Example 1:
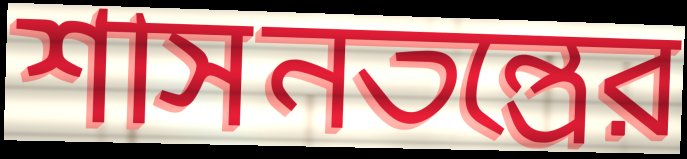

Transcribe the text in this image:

শাসনতন্ত্রের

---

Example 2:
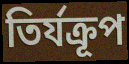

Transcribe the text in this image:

তির্যক্রূপ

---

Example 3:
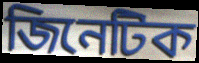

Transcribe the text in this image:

জিনেটিক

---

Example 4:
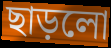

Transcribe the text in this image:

ছাড়লো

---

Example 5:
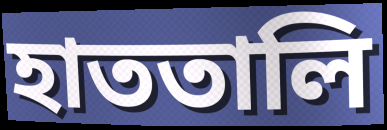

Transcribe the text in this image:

হাততালি